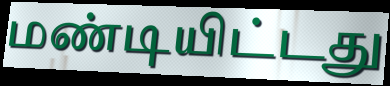
மண்டியிட்டது